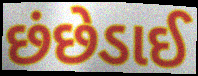
છંછેડાઈ